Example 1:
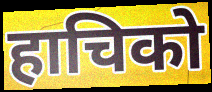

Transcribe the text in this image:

हाचिको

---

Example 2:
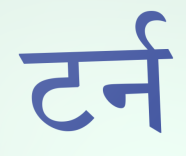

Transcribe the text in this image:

टर्न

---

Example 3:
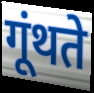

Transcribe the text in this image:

गूंथते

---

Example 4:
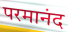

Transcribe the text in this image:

परमानंद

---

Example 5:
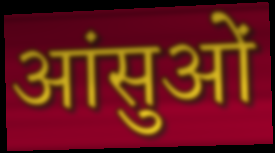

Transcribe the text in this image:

आंसुओं